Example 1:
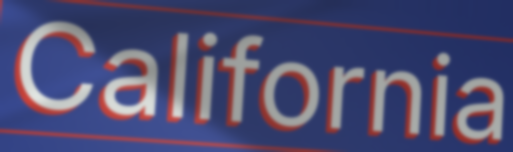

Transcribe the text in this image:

California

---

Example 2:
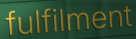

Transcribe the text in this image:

fulfilment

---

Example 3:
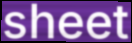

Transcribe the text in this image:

sheet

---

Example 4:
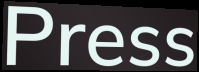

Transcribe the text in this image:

Press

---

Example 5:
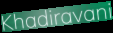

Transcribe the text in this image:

Khadiravani